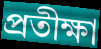
প্ৰতীক্ষা